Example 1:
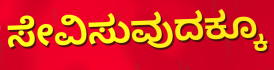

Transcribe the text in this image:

ಸೇವಿಸುವುದಕ್ಕೂ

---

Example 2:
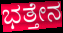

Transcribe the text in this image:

ಭತ್ತೇನ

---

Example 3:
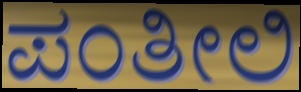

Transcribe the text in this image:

ಪಂತೀಲಿ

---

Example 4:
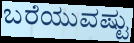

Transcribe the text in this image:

ಬರೆಯುವಷ್ಟು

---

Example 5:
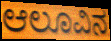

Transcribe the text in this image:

ಆಲೂವಿನ